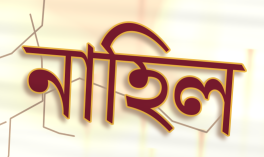
নাহিল